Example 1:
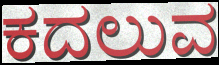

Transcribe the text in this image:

ಕದಲುವ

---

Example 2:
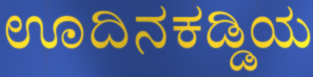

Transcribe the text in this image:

ಊದಿನಕಡ್ಡಿಯ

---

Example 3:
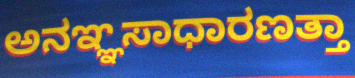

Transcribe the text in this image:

ಅನಞ್ಞಸಾಧಾರಣತ್ತಾ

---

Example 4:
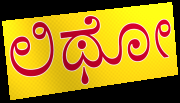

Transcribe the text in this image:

ಲಿಥೋ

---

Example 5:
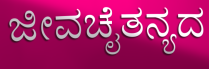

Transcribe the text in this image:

ಜೀವಚೈತನ್ಯದ